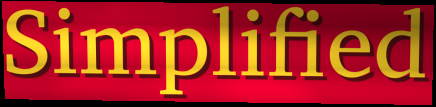
Simplified